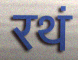
रथं